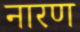
नारण